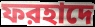
ফরহাদে